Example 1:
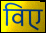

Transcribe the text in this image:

विए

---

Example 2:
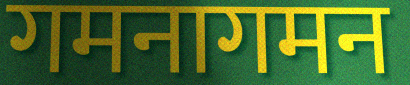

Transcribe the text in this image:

गमनागमन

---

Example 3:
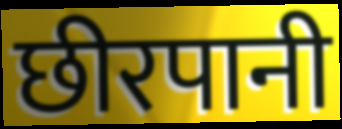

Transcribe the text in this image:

छीरपानी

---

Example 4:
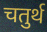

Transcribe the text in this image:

चतुर्थ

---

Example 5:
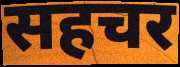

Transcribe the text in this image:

सहचर